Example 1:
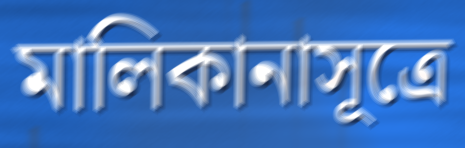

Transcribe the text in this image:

মালিকানাসূত্রে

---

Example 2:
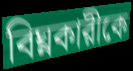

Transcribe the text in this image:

বিঘ্নকারীকে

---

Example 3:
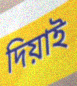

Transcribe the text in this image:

দিয়াই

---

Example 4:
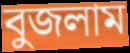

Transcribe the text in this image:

বুজলাম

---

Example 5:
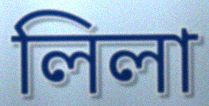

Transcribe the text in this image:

লিলা